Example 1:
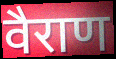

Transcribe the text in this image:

वैराण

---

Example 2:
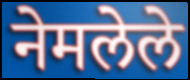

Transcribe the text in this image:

नेमलेले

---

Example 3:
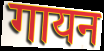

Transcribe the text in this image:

गायन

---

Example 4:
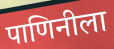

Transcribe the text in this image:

पाणिनीला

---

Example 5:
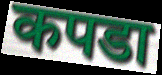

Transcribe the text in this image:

कपडा